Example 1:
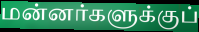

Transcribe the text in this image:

மன்னர்களுக்குப்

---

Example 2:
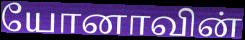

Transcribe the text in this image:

யோனாவின்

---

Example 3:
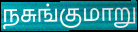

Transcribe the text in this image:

நசுங்குமாறு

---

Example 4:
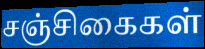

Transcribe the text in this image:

சஞ்சிகைகள்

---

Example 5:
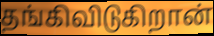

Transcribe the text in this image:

தங்கிவிடுகிறான்